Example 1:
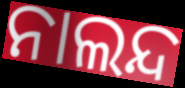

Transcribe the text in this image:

ନାଲନ୍ଦ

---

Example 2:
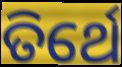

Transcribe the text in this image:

ତିର୍ଥେ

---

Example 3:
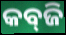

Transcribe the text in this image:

କବ୍‍ଜି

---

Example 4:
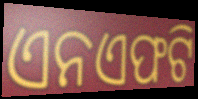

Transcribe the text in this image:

ଏନଏଫଟି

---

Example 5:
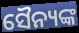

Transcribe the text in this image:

ସୈନ୍ୟଙ୍କ